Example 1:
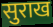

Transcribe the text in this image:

सुराख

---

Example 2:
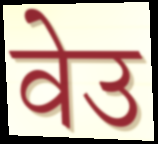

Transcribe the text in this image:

वेउ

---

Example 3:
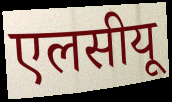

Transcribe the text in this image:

एलसीयू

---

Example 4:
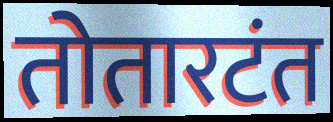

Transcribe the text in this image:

तोतारटंत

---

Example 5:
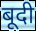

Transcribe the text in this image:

बूदी